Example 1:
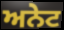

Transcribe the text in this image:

ਅਨੇਟ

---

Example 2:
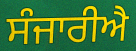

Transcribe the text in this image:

ਸੰਜਾਰੀਐ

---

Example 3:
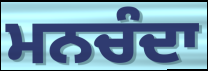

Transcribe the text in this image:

ਮਨਚੰਦਾ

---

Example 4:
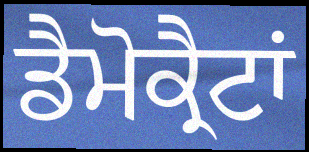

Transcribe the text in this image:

ਡੈਮੋਕ੍ਰੈਟਾਂ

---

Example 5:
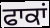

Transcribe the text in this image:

ਫਾਕਾਂ